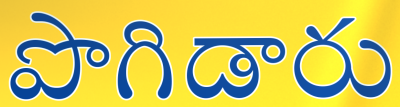
పొగిడారు